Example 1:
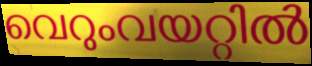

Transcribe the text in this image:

വെറുംവയറ്റിൽ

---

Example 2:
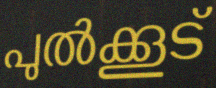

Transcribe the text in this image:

പുൽക്കൂട്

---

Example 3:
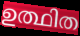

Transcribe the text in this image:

ഉത്ഥിത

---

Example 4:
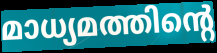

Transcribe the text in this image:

മാധ്യമത്തിന്റെ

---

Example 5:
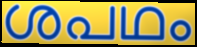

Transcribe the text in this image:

ശപഥം